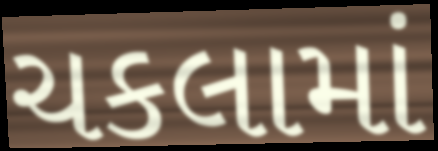
ચકલામાં